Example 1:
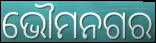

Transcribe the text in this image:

ଭୌମନଗର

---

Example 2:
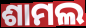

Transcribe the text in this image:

ଶାମଲ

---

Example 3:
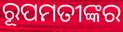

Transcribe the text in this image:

ରୂପମତୀଙ୍କର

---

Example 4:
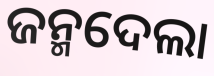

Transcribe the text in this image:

ଜନ୍ମଦେଲା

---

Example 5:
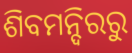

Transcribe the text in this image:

ଶିବମନ୍ଦିରରୁ